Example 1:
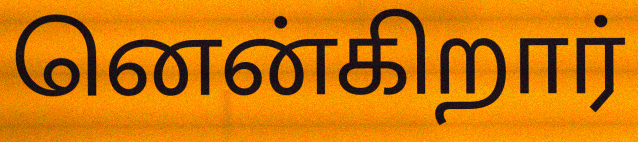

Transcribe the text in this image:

னென்கிறார்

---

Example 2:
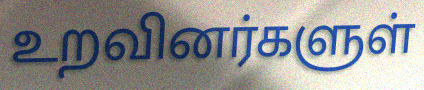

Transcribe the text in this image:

உறவினர்களுள்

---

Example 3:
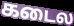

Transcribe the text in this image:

கடைல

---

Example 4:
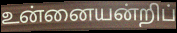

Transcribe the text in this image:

உன்னையன்றிப்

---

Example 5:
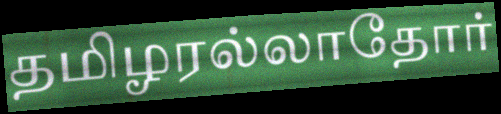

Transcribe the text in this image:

தமிழரல்லாதோர்